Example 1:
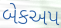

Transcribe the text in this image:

બેકઅપ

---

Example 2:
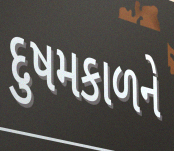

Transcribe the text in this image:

દુષમકાળને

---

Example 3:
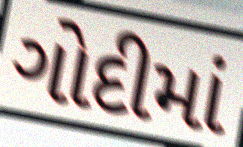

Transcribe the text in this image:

ગોદીમાં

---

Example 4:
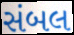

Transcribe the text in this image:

સંબલ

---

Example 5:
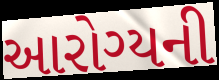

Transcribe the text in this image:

આરોગ્યની